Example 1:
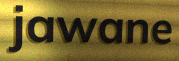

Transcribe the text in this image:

jawane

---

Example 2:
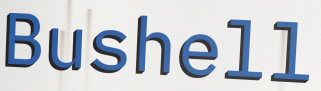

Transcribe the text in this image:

Bushell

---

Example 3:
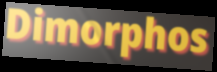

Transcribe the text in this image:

Dimorphos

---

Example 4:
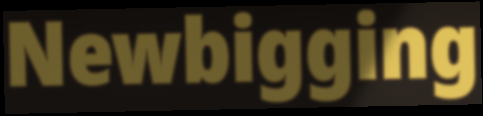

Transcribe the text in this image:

Newbigging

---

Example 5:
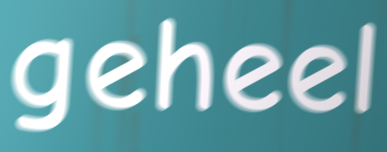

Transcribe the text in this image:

geheel